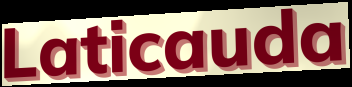
Laticauda